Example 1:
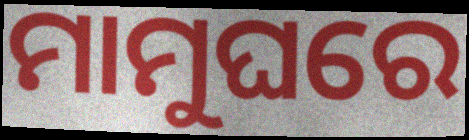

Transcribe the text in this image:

ମାମୁଘରେ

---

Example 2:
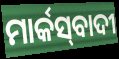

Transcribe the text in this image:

ମାର୍କସ୍‍ବାଦୀ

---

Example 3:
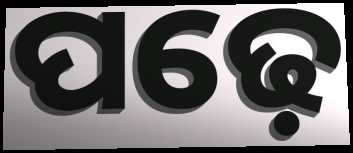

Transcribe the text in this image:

ପଢ଼େ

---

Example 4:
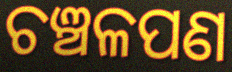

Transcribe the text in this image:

ଚଞ୍ଚଳପଣ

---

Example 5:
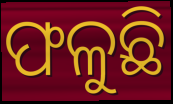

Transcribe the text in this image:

ଫଳୁଛି